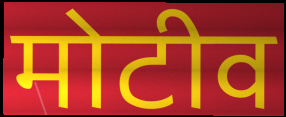
मोटीव